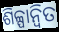
ଶିଳ୍ପାନ୍ବିତ